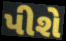
પીશે